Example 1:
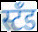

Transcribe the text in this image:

स्टँड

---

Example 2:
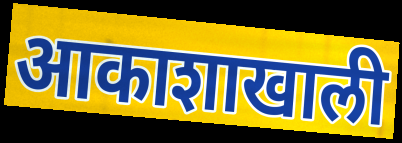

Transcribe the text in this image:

आकाशाखाली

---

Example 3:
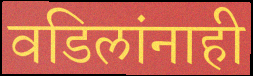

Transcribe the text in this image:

वडिलांनाही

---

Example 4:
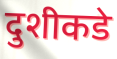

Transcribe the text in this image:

दुशीकडे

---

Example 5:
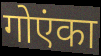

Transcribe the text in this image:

गोएंका